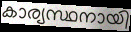
കാര്യസ്ഥനായി